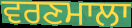
ਵਰਣਮਾਲਾ